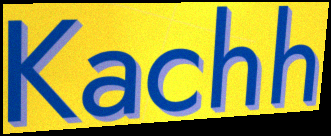
Kachh